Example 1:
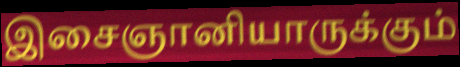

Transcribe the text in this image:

இசைஞானியாருக்கும்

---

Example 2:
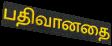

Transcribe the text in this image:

பதிவானதை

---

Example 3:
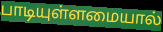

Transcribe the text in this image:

பாடியுள்ளமையால்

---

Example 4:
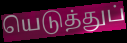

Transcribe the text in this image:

யெடுத்துப்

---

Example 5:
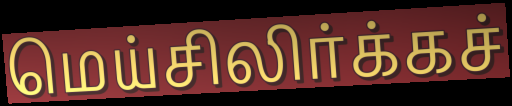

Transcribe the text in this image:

மெய்சிலிர்க்கச்